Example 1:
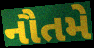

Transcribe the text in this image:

નૌતમે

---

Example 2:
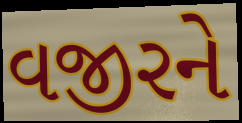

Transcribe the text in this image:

વજીરને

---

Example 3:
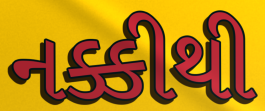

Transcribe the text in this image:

નક્કીથી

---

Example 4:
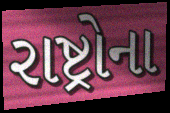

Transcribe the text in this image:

રાષ્ટ્રોના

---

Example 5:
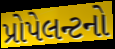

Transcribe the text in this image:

પ્રોપેલન્ટનો